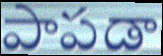
పాపడా